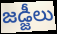
జడ్జీలు